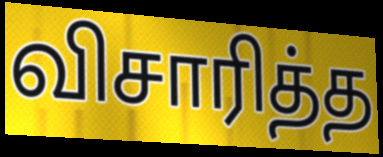
விசாரித்த